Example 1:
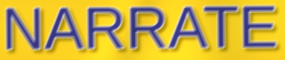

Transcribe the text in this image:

NARRATE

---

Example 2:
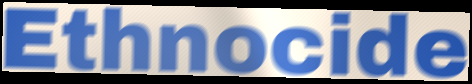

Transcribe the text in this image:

Ethnocide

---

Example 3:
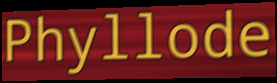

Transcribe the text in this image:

Phyllode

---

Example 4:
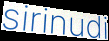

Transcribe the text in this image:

sirinudi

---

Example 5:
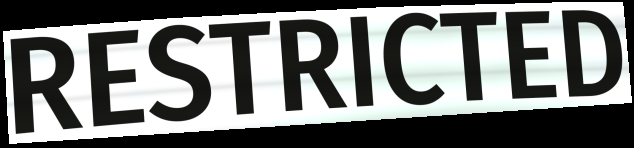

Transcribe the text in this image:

RESTRICTED